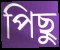
পিছু